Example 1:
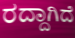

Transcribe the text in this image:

ರದ್ದಾಗಿದೆ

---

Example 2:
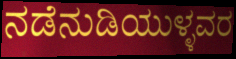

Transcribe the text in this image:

ನಡೆನುಡಿಯುಳ್ಳವರ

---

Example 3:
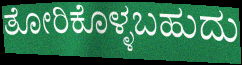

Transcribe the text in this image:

ತೋರಿಕೊಳ್ಳಬಹುದು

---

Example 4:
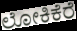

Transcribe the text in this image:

ಲೋಕಿಕೆರೆ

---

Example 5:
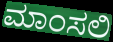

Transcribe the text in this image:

ಮಾಂಸಲಿ